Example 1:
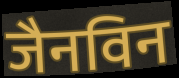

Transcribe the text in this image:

जैनविन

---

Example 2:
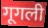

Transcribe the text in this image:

गूगली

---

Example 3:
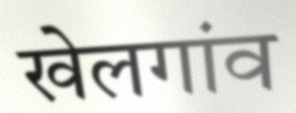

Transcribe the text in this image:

खेलगांव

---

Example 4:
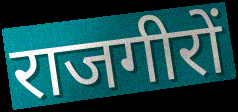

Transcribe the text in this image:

राजगीरों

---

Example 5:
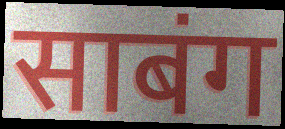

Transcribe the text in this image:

साबंग